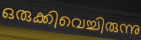
ഒരുക്കിവെച്ചിരുന്നു